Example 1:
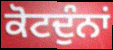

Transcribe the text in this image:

ਕੋਟਦੁੰਨਾਂ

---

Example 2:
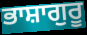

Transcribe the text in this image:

ਭਾਸ਼ਾਗੁਰੂ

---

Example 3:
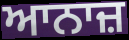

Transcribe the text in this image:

ਆਨਾਜ਼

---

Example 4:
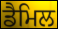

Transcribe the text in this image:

ਡੈਮਿਲ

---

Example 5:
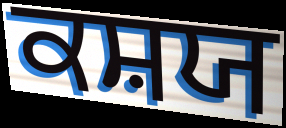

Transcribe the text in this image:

ਕਸ਼ਯ